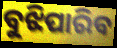
ବୁଝିପାରିବ